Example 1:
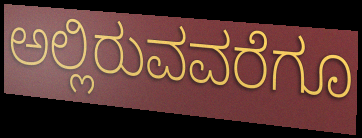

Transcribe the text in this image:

ಅಲ್ಲಿರುವವರೆಗೂ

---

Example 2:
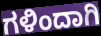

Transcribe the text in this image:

ಗಳಿಂದಾಗಿ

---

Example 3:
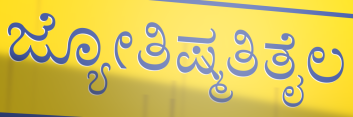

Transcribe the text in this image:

ಜ್ಯೋತಿಷ್ಮತಿತೈಲ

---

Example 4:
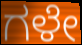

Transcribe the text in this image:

ಗಳೇ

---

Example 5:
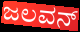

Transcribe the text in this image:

ಜಲವನ್